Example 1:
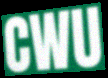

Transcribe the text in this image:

CWU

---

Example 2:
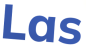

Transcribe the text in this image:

Las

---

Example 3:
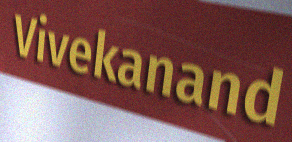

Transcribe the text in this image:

Vivekanand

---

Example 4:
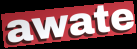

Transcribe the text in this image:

awate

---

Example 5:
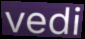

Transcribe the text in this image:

vedi